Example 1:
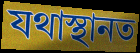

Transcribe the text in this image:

যথাস্থানত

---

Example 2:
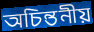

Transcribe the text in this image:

অচিন্তনীয়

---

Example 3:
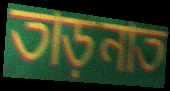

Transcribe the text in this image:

তাড়নাত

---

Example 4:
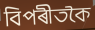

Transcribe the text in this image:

বিপৰীতকৈ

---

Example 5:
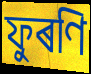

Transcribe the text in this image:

ফুৰণি